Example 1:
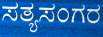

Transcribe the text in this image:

ಸತ್ಯಸಂಗರ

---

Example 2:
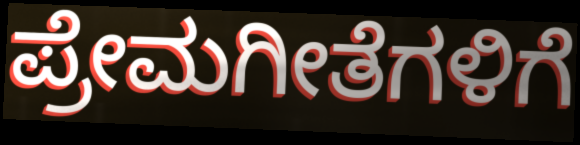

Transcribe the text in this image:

ಪ್ರೇಮಗೀತೆಗಳಿಗೆ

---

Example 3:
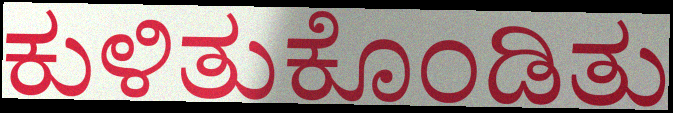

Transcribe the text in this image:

ಕುಳಿತುಕೊಂಡಿತು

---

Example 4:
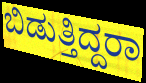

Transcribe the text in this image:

ಬಿಡುತ್ತಿದ್ದರಾ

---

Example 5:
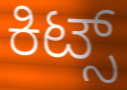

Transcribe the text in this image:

ಕಿಟ್ಸ್